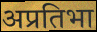
अप्रतिभा